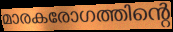
മാരകരോഗത്തിന്റെ